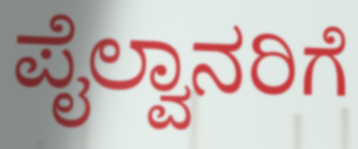
ಪೈಲ್ವಾನರಿಗೆ